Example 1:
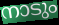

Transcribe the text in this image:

നാടും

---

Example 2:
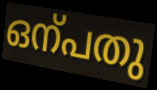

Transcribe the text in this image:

ഒന്പതു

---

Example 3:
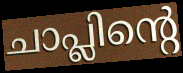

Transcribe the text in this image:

ചാപ്ലിന്റെ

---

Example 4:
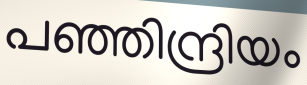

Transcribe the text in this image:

പഞ്ഞിന്ദ്രിയം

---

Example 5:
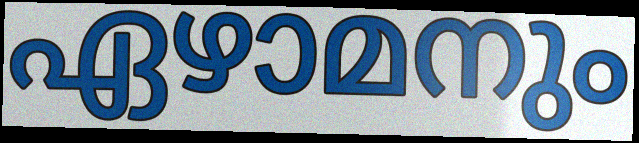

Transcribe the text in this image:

ഏഴാമനും